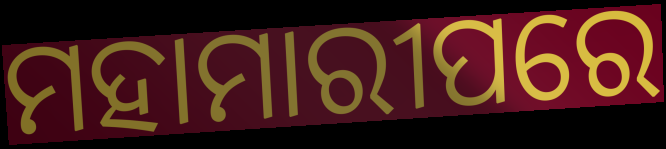
ମହାମାରୀପରେ